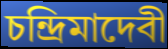
চন্দ্রিমাদেবী